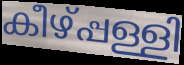
കീഴ്പ്പള്ളി